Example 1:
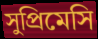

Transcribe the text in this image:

সুপ্রিমেসি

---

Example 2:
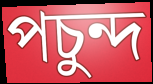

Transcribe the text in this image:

পচুন্দ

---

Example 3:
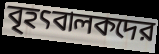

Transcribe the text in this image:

বৃহৎবালকদের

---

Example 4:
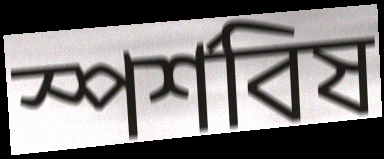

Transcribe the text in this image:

স্পর্শবিষ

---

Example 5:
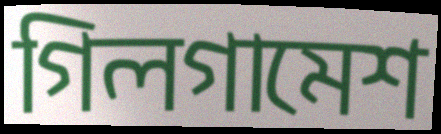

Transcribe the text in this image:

গিলগামেশ